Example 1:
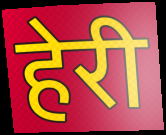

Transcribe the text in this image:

हेरी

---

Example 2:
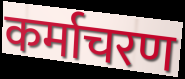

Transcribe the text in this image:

कर्माचरण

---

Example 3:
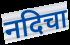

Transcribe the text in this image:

नदिचा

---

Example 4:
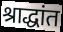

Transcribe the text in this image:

श्राद्धांत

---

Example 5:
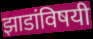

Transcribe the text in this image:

झाडांविषयी